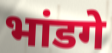
भांडगे